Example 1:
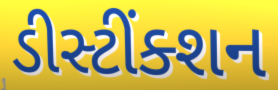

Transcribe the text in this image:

ડીસ્ટીંક્શન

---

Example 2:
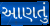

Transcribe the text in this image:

આણતું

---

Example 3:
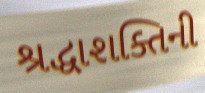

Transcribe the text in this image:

શ્રદ્ધાશક્તિની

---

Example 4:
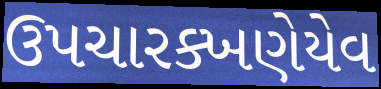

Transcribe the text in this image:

ઉપચારક્ખણેયેવ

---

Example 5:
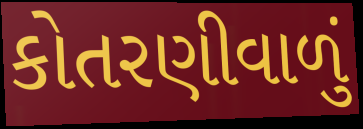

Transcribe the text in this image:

કોતરણીવાળું